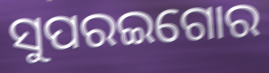
ସୁପରଇଗୋର